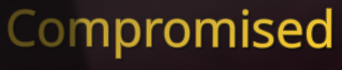
Compromised